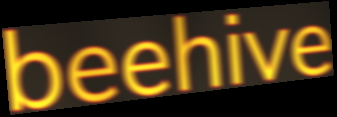
beehive